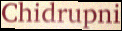
Chidrupni